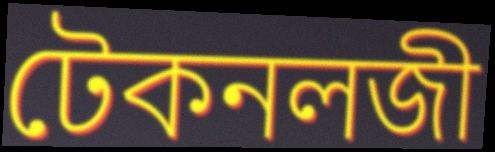
টেকনলজী